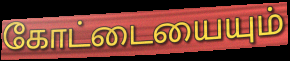
கோட்டையையும்